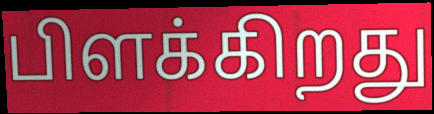
பிளக்கிறது